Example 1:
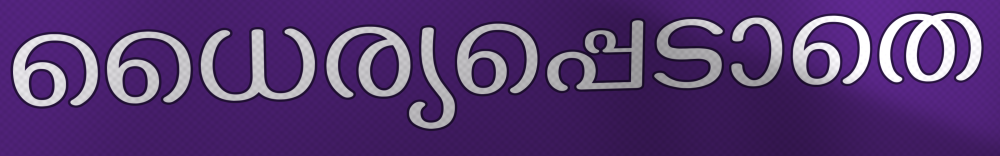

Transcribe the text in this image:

ധൈര്യപ്പെടാതെ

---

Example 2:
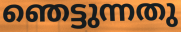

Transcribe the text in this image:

ഞെട്ടുന്നതു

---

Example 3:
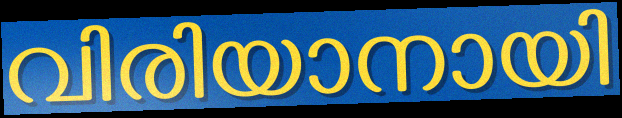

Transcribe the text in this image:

വിരിയാനായി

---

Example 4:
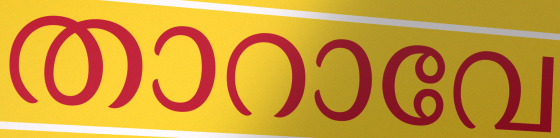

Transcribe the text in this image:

താറാവേ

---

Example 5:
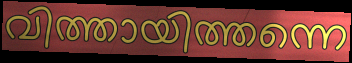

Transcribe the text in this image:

വിത്തായിത്തന്നെ